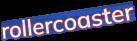
rollercoaster